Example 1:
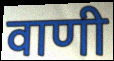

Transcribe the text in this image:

वाणी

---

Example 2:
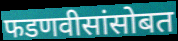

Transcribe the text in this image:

फडणवीसांसोबत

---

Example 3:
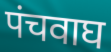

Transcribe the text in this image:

पंचवाघ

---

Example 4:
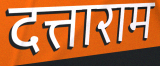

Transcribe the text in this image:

दत्ताराम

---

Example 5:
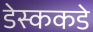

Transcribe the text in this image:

डेस्ककडे